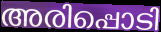
അരിപ്പൊടി